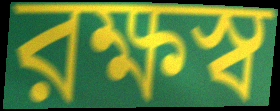
রক্ষস্ব